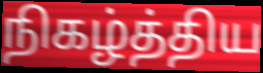
நிகழ்த்திய